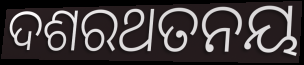
ଦଶରଥତନୟ